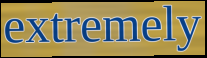
extremely